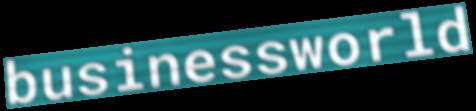
businessworld